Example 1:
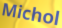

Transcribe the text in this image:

Michol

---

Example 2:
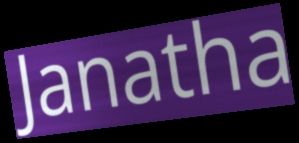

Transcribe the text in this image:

Janatha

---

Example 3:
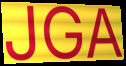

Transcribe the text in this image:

JGA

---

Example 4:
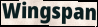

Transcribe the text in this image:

Wingspan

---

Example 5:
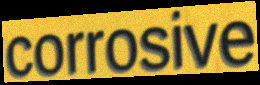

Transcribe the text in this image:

corrosive